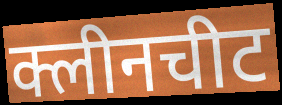
क्लीनचीट